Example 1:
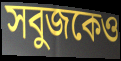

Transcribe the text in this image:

সবুজকেও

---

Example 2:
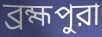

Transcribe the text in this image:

ব্রহ্মপুরা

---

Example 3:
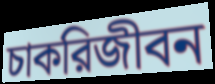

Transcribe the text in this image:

চাকরিজীবন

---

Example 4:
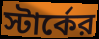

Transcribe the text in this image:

স্টার্কের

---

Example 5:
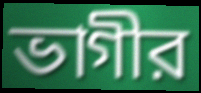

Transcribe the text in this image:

ভাগীর